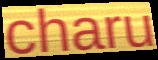
charu